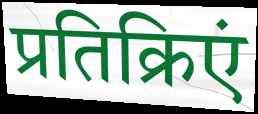
प्रतिक्रिएं